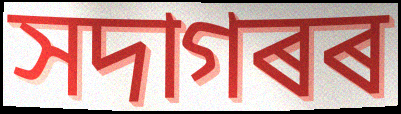
সদাগৰৰ